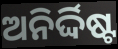
ଅନିର୍ଦ୍ଦିଷ୍ଟ